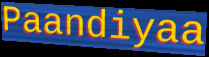
Paandiyaa